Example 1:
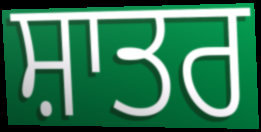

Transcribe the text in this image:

ਸ਼ਾਤਰ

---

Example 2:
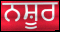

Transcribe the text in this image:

ਨਸ਼ੂਰ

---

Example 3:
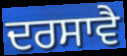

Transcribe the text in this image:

ਦਰਸਾਵੈ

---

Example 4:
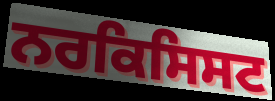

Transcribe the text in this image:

ਨਰਕਿਸਿਸਟ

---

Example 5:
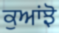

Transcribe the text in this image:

ਕੁਆਂਝੋ